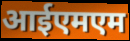
आईएमएम